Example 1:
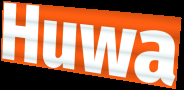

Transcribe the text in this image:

Huwa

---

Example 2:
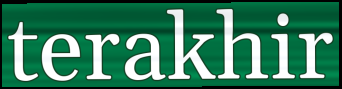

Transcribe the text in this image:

terakhir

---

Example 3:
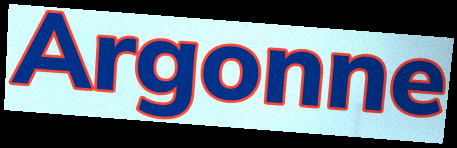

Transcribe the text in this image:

Argonne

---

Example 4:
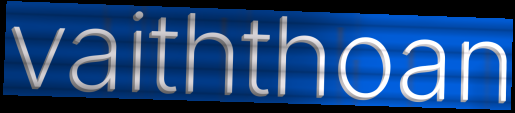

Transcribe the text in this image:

vaiththoan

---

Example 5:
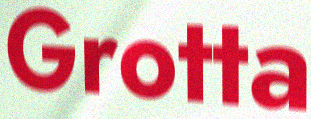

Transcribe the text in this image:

Grotta